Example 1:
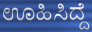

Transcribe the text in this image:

ಊಹಿಸಿದ್ದೆ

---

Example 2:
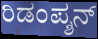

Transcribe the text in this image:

ರಿಡಂಪ್ಶನ್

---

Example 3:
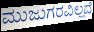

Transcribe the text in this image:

ಮುಜುಗರವಿಲ್ಲದೆ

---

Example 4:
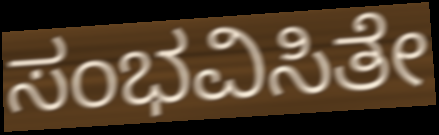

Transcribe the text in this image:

ಸಂಭವಿಸಿತೇ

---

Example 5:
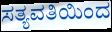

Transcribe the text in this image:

ಸತ್ಯವತಿಯಿಂದ